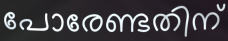
പോരേണ്ടതിന്